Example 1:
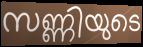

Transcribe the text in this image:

സണ്ണിയുടെ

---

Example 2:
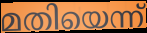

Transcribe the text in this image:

മതിയെന്ന്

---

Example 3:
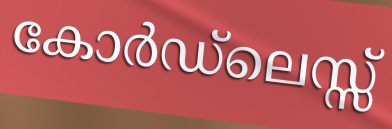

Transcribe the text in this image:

കോർഡ്ലെസ്സ്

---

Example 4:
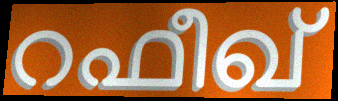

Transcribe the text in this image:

റഫീഖ്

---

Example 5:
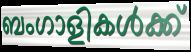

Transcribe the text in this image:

ബംഗാളികൾക്ക്